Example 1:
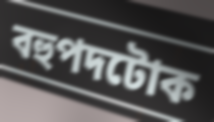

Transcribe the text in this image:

বহুপদটোক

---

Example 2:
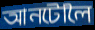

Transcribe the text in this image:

আনটোলৈ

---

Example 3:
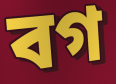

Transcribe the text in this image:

বগ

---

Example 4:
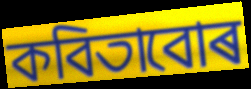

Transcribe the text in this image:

কবিতাবোৰ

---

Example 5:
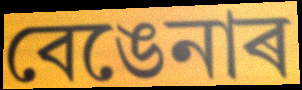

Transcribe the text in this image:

বেঙেনাৰ